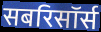
सबरिसॉर्स